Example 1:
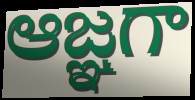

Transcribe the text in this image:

ఆజ్ఞగా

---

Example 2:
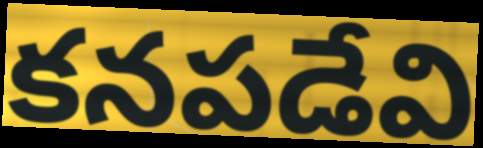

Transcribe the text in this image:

కనపడేవి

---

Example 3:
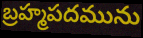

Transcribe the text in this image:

బ్రహ్మపదమును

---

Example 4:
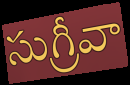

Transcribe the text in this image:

సుగ్రీవా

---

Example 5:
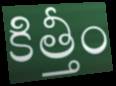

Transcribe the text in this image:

కిత్తీం